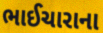
ભાઈચારાના